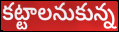
కట్టాలనుకున్న